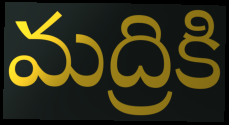
మద్రికి